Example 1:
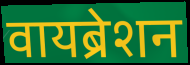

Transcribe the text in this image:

वायब्रेशन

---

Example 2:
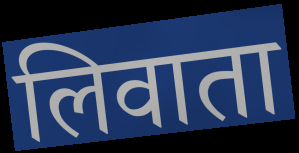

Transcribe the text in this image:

लिवाता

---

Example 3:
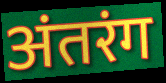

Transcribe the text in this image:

अंतरंग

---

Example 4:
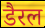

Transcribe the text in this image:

डैरल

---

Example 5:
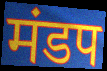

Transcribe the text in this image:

मंडप